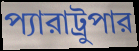
প্যারাট্রুপার